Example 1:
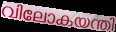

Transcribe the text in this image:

വിലോകയന്തി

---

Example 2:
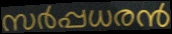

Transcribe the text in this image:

സർപ്പധരൻ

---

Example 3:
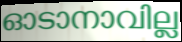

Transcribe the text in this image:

ഓടാനാവില്ല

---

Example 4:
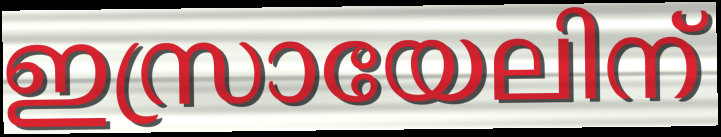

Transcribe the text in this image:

ഇസ്രായേലിന്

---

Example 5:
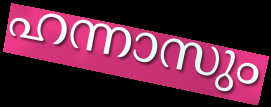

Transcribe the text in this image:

ഹന്നാസും